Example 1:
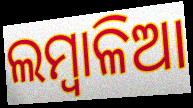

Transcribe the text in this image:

ଲମ୍ବାଳିଆ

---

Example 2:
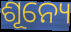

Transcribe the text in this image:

ଶୂନ୍ୟେ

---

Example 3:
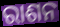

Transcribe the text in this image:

ରାଶନ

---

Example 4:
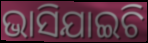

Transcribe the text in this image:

ଭାସିଯାଇଚି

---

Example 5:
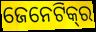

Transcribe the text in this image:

ଜେନେଟିକ୍‌ର